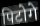
पिटोगे